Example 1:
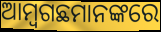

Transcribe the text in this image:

ଆମ୍ବଗଛମାନଙ୍କରେ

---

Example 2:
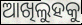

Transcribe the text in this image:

ଆଖିଲୁହକୁ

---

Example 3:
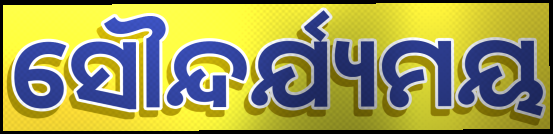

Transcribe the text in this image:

ସୌନ୍ଦର୍ଯ୍ୟମୟ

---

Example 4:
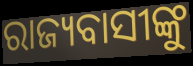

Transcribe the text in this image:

ରାଜ୍ୟବାସୀଙ୍କୁ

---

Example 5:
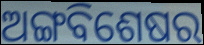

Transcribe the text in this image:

ଅଙ୍ଗବିଶେଷର